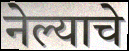
नेल्याचे